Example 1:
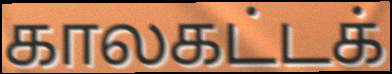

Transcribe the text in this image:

காலகட்டக்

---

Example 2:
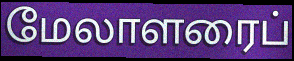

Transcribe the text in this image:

மேலாளரைப்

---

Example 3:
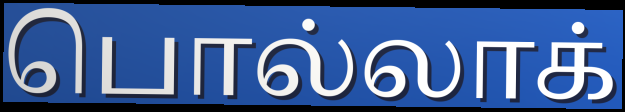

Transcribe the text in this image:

பொல்லாக்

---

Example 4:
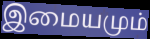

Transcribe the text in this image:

இமையமும்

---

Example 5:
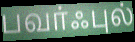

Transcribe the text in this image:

பவர்ஃபுல்